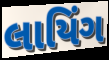
લાયિંગ